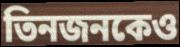
তিনজনকেও